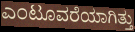
ಎಂಟೂವರೆಯಾಗಿತ್ತು